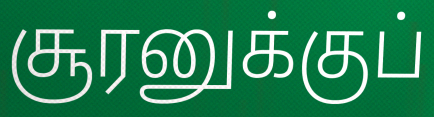
சூரனுக்குப்